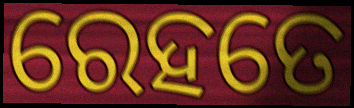
ରେହତେ